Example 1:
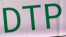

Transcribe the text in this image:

DTP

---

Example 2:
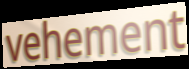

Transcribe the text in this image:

vehement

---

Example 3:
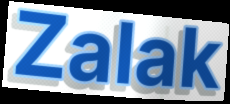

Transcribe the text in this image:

Zalak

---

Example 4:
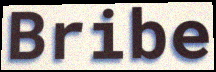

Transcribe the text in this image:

Bribe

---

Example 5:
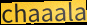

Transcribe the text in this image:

chaaala